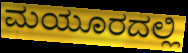
ಮಯೂರದಲ್ಲಿ